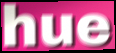
hue